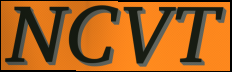
NCVT